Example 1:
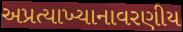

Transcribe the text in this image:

અપ્રત્યાખ્યાનાવરણીય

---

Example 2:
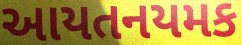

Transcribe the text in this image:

આયતનયમક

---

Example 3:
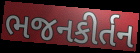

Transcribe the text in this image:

ભજનકીર્તન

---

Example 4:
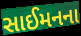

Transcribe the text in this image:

સાઈમનના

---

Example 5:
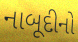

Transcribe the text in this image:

નાબૂદીનો